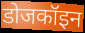
डोजकॉइन